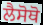
ਲੈਸੋਥੋ